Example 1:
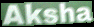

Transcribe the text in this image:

Aksha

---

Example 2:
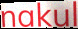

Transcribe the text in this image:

nakul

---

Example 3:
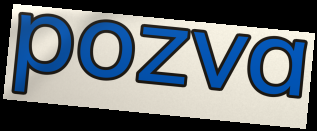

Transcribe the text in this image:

pozva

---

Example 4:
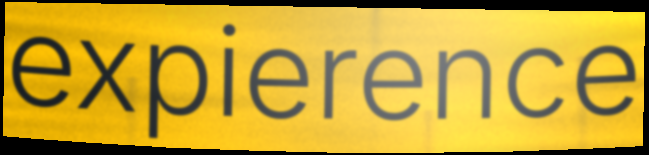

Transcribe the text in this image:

expierence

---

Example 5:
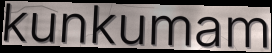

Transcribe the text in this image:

kunkumam